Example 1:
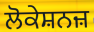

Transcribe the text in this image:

ਲੋਕੇਸ਼ਨਜ਼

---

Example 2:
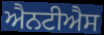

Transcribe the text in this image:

ਐਨਟੀਐਸ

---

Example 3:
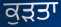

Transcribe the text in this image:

ਕੁੜਤਾ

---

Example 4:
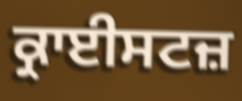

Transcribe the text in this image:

ਕ੍ਰਾਈਸਟਜ਼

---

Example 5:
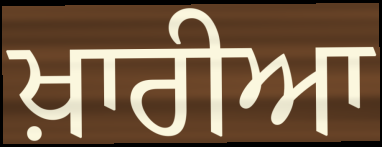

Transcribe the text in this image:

ਖ਼ਾਰੀਆ